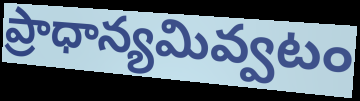
ప్రాధాన్యమివ్వటం